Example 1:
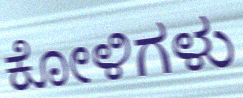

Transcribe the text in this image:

ಕೋಳಿಗಳು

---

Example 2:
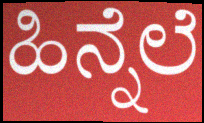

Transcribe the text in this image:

ಹಿನ್ನೆಲೆ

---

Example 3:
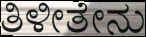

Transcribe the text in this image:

ತಿಳೀತೇನು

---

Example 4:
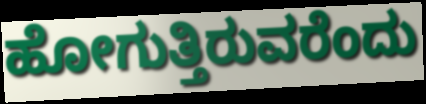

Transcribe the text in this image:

ಹೋಗುತ್ತಿರುವರೆಂದು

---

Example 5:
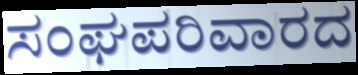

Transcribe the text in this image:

ಸಂಘಪರಿವಾರದ